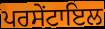
ਪਰਸੇਂਟਾਇਲ